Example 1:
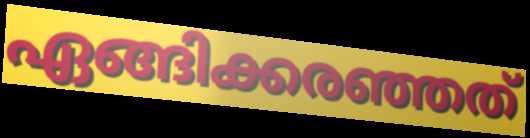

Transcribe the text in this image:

ഏങ്ങിക്കരഞ്ഞത്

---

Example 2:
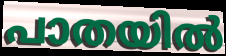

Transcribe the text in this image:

പാതയിൽ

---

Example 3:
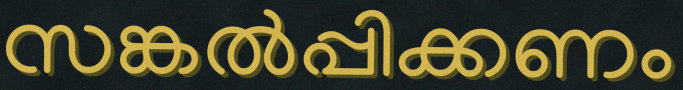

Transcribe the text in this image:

സങ്കൽപ്പിക്കണം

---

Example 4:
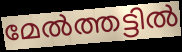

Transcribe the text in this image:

മേൽത്തട്ടിൽ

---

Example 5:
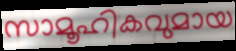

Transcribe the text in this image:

സാമൂഹികവുമായ